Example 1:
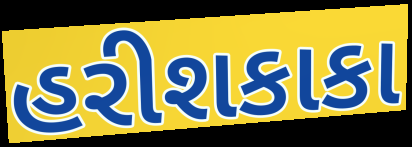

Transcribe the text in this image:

હરીશકાકા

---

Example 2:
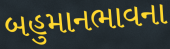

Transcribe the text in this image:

બહુમાનભાવના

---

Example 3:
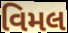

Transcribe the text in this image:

વિમલ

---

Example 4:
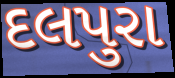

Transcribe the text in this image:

દલપુરા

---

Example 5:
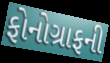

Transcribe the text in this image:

ફોનોગ્રાફની